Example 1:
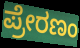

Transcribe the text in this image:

ಪ್ರೇರಣಂ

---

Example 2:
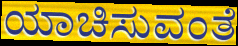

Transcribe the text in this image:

ಯಾಚಿಸುವಂತೆ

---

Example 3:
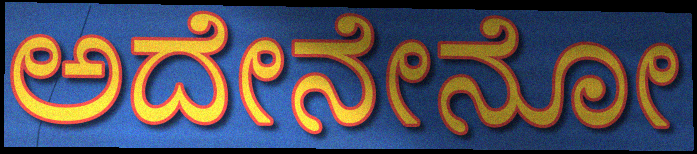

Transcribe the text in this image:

ಅದೇನೇನೋ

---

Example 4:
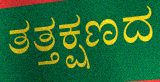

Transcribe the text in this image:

ತತ್ತಕ್ಷಣದ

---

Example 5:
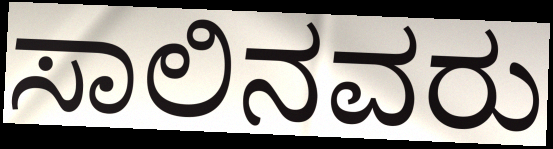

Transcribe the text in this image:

ಸಾಲಿನವರು